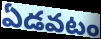
ఏడవటం